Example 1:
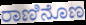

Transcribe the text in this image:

ರಾಣಿನೊಣ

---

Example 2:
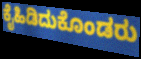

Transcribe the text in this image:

ಕೈಹಿಡಿದುಕೊಂಡರು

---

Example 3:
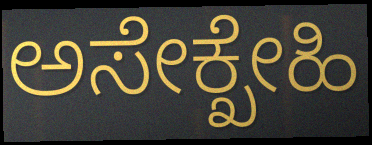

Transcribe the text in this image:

ಅಸೇಕ್ಖೇಹಿ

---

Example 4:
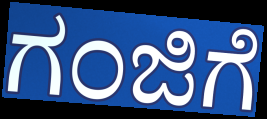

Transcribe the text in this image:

ಗಂಜಿಗೆ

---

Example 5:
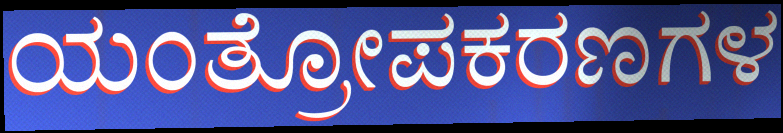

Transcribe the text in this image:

ಯಂತ್ರೋಪಕರಣಗಳ